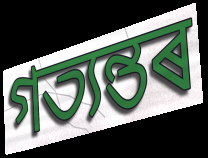
গত্যন্তৰ